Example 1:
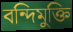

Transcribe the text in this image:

বন্দিমুক্তি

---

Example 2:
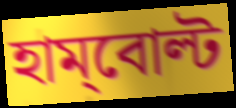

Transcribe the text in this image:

হাম্‌বোল্ট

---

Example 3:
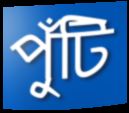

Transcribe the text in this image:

পুঁটি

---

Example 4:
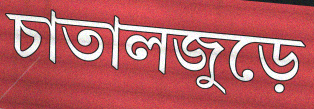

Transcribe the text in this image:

চাতালজুড়ে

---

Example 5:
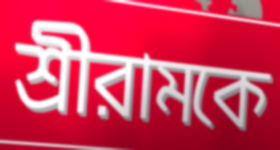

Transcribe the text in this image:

শ্রীরামকে